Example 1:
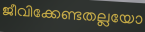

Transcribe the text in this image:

ജീവിക്കേണ്ടതല്ലയോ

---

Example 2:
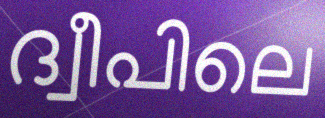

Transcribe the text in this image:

ദ്വീപിലെ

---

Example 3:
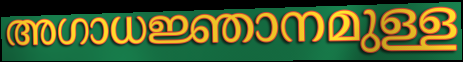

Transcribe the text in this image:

അഗാധജ്ഞാനമുള്ള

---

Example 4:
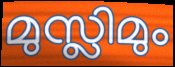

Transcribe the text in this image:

മുസ്ലിമും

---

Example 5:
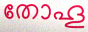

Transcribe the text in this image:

തോഹൂ